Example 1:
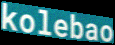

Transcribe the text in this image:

kolebao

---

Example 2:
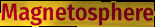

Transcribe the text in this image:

Magnetosphere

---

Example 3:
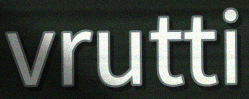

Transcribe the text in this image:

vrutti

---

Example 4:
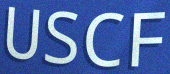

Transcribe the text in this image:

USCF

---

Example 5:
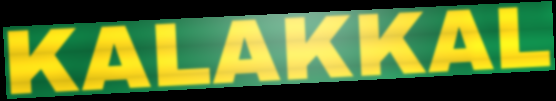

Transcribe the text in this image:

KALAKKAL